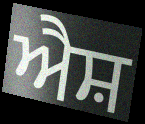
ਐਸ਼